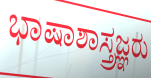
ಭಾಷಾಶಾಸ್ತ್ರಜ್ಞರು